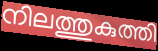
നിലത്തുകുത്തി